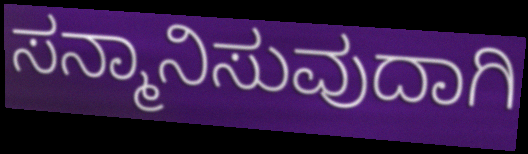
ಸನ್ಮಾನಿಸುವುದಾಗಿ